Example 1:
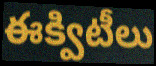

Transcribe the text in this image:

ఈక్విటీలు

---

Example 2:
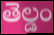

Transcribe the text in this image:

తెల్డం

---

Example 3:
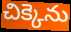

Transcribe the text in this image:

చిక్కెను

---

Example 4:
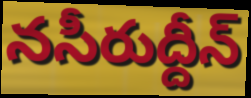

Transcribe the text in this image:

నసీరుద్దీన్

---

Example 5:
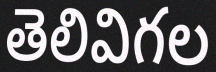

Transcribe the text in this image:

తెలివిగల